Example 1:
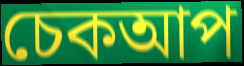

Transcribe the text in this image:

চেকআপ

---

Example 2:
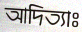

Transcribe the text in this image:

আদিত্যাঃ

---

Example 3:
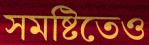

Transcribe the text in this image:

সমষ্টিতেও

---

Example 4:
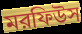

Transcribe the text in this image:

মরফিউস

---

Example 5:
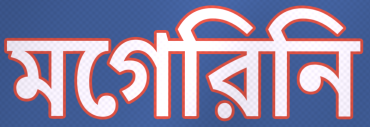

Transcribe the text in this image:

মগেরিনি